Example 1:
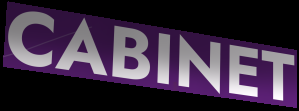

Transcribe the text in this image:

CABINET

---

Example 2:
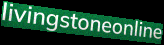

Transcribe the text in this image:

livingstoneonline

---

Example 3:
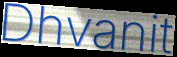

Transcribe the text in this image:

Dhvanit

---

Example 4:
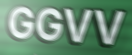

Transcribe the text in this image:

GGVV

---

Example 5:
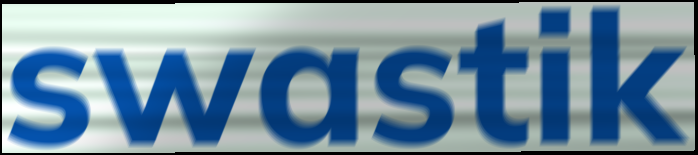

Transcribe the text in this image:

swastik